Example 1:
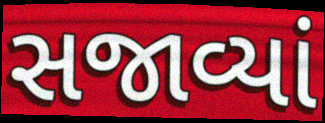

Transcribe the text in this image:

સજાવ્યાં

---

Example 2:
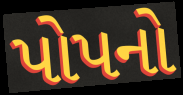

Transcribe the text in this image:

પોપનો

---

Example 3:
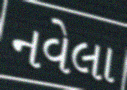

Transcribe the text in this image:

નવેલા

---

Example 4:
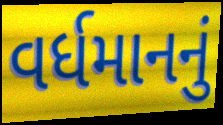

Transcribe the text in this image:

વર્ધમાનનું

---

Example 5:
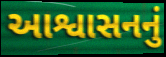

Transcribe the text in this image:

આશ્વાસનનું